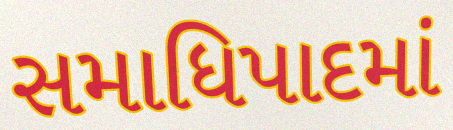
સમાધિપાદમાં